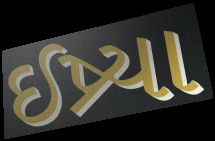
ઈષ્ર્યા